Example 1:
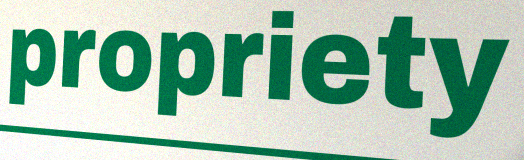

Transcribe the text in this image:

propriety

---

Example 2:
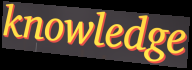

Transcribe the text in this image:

knowledge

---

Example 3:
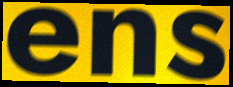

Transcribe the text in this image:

ens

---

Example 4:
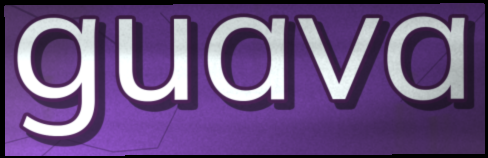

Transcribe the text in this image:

guava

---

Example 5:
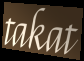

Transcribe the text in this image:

takat